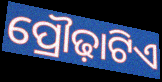
ପ୍ରୌଢ଼ାଟିଏ